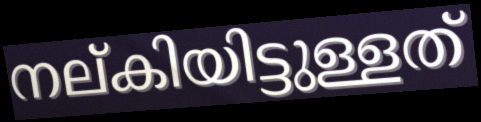
നല്കിയിട്ടുള്ളത്